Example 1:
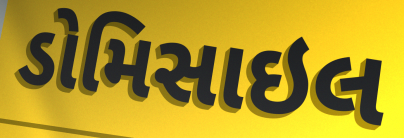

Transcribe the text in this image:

ડોમિસાઇલ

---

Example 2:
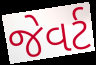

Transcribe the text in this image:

જેવર્ટ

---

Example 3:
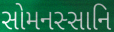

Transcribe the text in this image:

સોમનસ્સાનિ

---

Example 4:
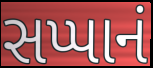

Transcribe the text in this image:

સપ્પાનં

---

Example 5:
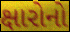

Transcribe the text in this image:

ક્ષારોનો